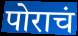
पोराचं